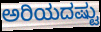
ಅರಿಯದಷ್ಟು